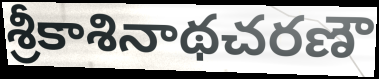
శ్రీకాశినాథచరణౌ